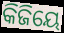
କିଜିୟେ